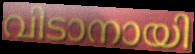
വിടാനായി